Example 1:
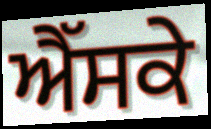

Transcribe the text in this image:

ਐੱਸਕੇ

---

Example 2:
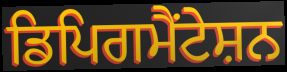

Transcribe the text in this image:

ਡਿਪਿਗਮੈਂਟੇਸ਼ਨ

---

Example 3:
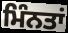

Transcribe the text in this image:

ਮਿੰਨਤਾਂ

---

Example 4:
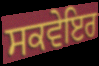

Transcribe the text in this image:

ਸਕਵੇਇਰ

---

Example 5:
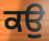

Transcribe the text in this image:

ਕਉੁ